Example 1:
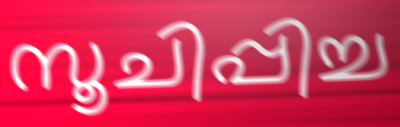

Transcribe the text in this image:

സൂചിപ്പിച്ച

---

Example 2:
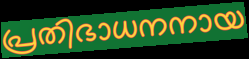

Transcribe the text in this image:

പ്രതിഭാധനനായ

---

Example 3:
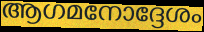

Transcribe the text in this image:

ആഗമനോദ്ദേശം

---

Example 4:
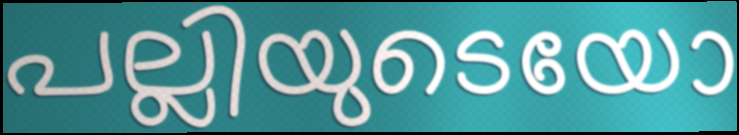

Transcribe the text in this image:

പല്ലിയുടെയോ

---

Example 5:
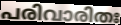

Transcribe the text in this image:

പരിവാരിതഃ